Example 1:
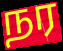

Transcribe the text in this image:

நர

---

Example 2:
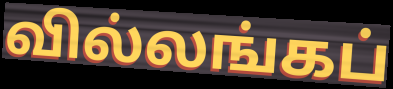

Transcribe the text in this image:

வில்லங்கப்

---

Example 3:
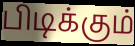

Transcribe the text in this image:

பிடிக்கும்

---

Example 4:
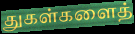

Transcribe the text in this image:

துகள்களைத்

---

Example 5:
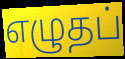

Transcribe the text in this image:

எழுதப்